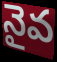
నైవ